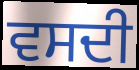
ਵਸਦੀ